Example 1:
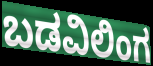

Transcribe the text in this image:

ಬಡವಿಲಿಂಗ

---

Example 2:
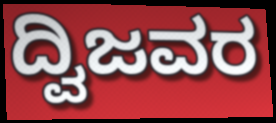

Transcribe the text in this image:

ದ್ವಿಜವರ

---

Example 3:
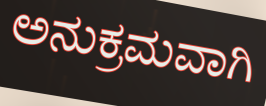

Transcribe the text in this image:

ಅನುಕ್ರಮವಾಗಿ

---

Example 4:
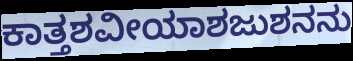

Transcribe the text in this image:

ಕಾತ್ತಶವೀಯಾಶಜುಶನನು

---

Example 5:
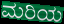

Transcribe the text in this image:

ಮರಿಯ